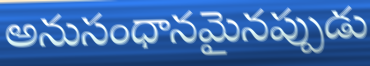
అనుసంధానమైనప్పుడు